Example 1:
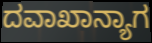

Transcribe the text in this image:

ದವಾಖಾನ್ಯಾಗ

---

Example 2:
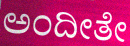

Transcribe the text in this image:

ಅಂದೀತೇ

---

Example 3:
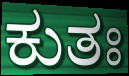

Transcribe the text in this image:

ಕುತಃ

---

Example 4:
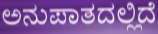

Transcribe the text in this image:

ಅನುಪಾತದಲ್ಲಿದೆ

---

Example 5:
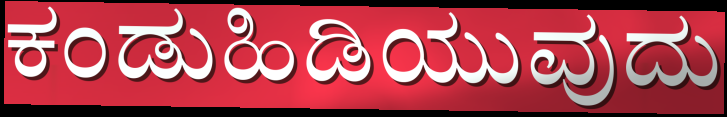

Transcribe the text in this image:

ಕಂಡುಹಿಡಿಯುವುದು